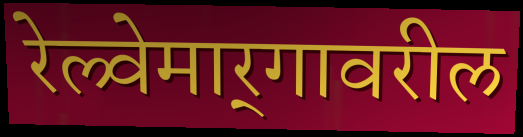
रेल्वेमार्गावरील